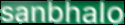
sanbhalo